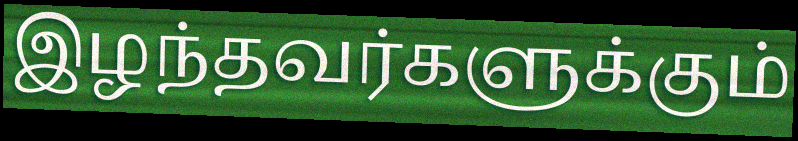
இழந்தவர்களுக்கும்